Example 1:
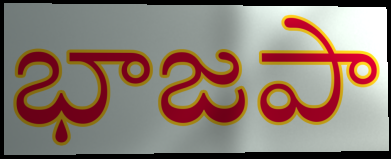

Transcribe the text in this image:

భాజపా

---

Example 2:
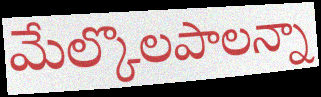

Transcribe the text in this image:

మేల్కొలపాలన్నా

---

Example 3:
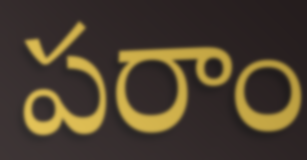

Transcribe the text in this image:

పరాం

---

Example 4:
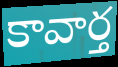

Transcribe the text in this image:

కావార్త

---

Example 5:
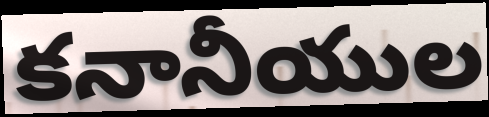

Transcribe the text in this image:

కనానీయుల